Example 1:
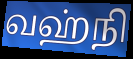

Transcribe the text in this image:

வஹ்நி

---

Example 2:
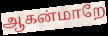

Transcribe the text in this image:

ஆகன்மாறே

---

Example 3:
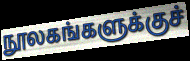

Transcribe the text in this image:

நூலகங்களுக்குச்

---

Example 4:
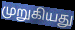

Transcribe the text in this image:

முறுகியது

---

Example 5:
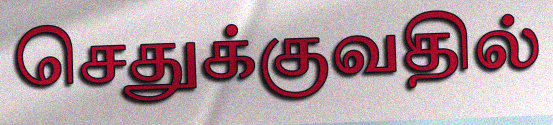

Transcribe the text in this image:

செதுக்குவதில்